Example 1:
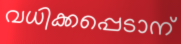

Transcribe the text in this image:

വധിക്കപ്പെടാന്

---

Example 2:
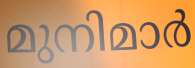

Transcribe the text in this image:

മുനിമാർ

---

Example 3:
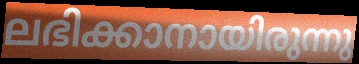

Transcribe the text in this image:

ലഭിക്കാനായിരുന്നു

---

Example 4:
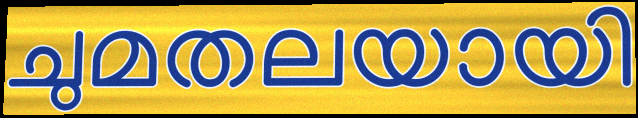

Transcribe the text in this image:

ചുമതലയായി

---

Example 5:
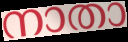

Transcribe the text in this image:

നാതാ